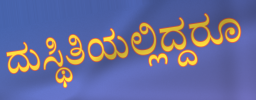
ದುಸ್ಥಿತಿಯಲ್ಲಿದ್ದರೂ